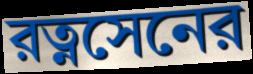
রত্নসেনের